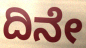
ದಿನೇ